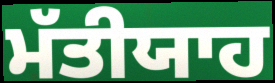
ਮੱਤੀਯਾਹ